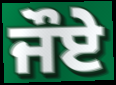
ਜੌਏ